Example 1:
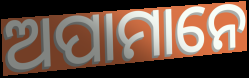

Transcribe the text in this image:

ଅପାମାନେ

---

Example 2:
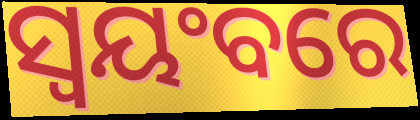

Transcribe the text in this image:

ସ୍ଵୟଂବରେ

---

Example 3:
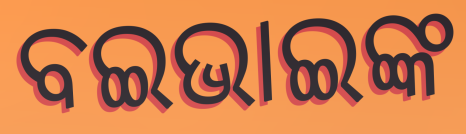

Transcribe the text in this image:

ବଇଭାଇଙ୍କ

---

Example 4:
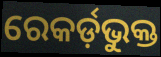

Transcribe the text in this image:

ରେକର୍ଡ଼ଭୁକ୍ତ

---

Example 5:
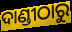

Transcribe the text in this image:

ଦାଣ୍ଡୀଠାରୁ